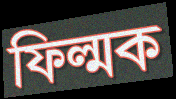
ফিল্মক